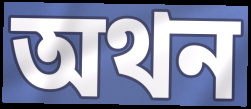
অথন